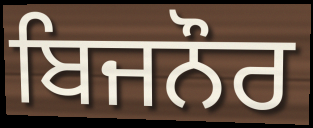
ਬਿਜਨੌਰ